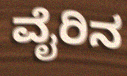
ವೈರಿನ